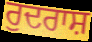
ਰੁਦਰਾਸ਼